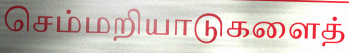
செம்மறியாடுகளைத்